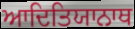
ਆਦਿਤਿਯਾਨਾਥ